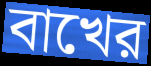
বাখের